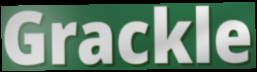
Grackle